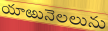
యాఱునెలలును